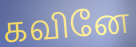
கவினே